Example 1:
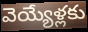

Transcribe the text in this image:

వెయ్యేళ్లకు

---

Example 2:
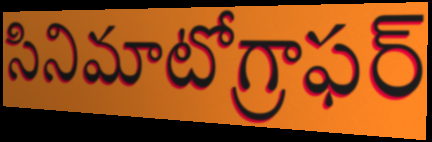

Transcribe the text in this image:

సినిమాటోగ్రాఫర్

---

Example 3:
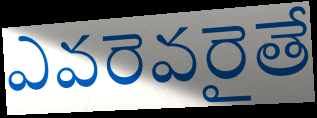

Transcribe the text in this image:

ఎవరెవరైతే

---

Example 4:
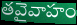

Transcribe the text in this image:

తవైవాహం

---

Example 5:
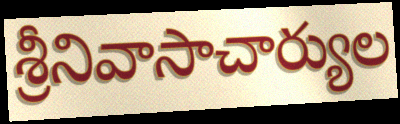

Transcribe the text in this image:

శ్రీనివాసాచార్యుల